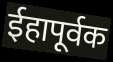
ईहापूर्वक